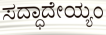
ಸದ್ಧಾದೇಯ್ಯಂ